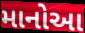
માનોઆ